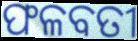
ଫଳବତୀ